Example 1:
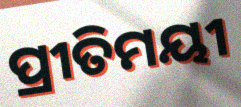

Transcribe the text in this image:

ପ୍ରୀତିମୟୀ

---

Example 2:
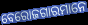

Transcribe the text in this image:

ବେରୋଜଗାରମାନେ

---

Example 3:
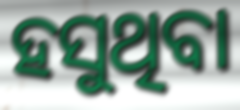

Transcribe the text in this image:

ହସୁଥିବା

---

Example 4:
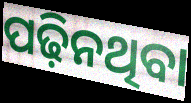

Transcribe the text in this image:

ପଢ଼ିନଥିବା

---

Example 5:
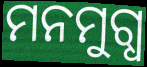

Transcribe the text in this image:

ମନମୁଗ୍ଧ